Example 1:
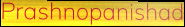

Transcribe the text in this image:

Prashnopanishad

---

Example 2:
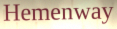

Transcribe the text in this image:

Hemenway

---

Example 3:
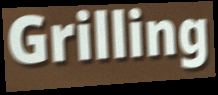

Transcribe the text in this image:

Grilling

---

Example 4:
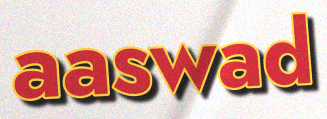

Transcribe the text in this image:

aaswad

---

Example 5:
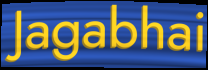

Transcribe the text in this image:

Jagabhai